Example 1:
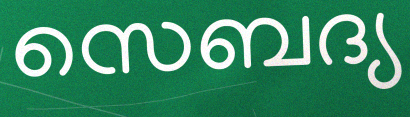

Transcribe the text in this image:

സെബദ്യ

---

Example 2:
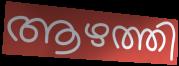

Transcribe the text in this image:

ആഴത്തി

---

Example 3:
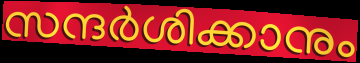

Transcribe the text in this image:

സന്ദർശിക്കാനും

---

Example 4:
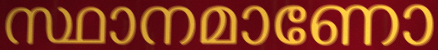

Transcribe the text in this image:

സ്ഥാനമാണോ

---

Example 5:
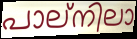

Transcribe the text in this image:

പാല്നിലാ